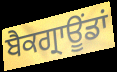
ਬੈਕਗ੍ਰਾਊਂਡਾਂ